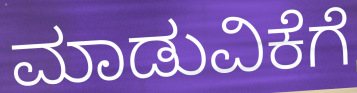
ಮಾಡುವಿಕೆಗೆ